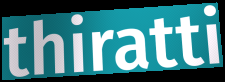
thiratti